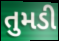
તુમડી